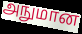
அநுமான